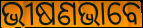
ଭୀଷଣଭାବେ